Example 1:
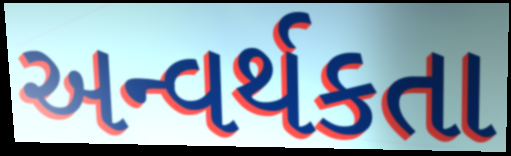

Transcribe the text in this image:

અન્વર્થકતા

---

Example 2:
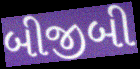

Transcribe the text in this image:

બીજીબી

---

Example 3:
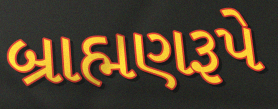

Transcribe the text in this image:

બ્રાહ્મણરૂપે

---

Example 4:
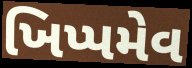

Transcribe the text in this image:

ખિપ્પમેવ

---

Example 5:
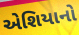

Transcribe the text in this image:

એશિયાનો